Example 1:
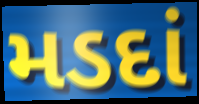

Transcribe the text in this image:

મડદાં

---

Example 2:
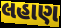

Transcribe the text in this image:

લહાણ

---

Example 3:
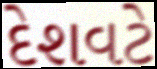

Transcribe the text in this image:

દેશવટે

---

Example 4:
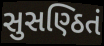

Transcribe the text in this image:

સુસણ્ઠિતં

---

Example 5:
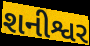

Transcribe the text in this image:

શનીશ્વર